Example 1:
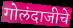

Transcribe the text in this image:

गोलंदाजीचे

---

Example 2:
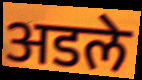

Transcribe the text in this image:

अडले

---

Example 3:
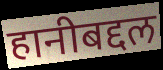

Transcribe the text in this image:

हानीबद्दल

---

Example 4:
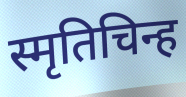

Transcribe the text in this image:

स्मृतिचिन्ह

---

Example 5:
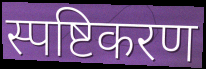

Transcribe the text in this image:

स्पष्टिकरण